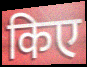
किए